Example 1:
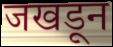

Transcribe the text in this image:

जखडून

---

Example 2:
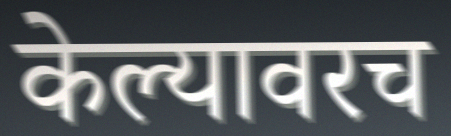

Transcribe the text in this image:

केल्यावरच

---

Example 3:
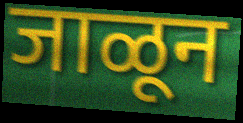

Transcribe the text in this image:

जाळून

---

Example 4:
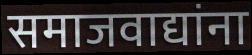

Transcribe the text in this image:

समाजवाद्यांना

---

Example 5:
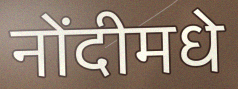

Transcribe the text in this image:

नोंदीमधे